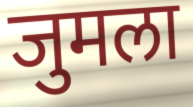
जुमला